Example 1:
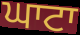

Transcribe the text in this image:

ਘਾਟਾ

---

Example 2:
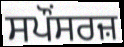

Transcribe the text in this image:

ਸਪੌਂਸਰਜ਼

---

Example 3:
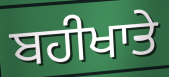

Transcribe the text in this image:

ਬਹੀਖਾਤੇ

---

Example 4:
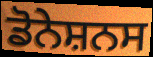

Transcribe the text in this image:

ਡੋਨੇਸ਼ਨਸ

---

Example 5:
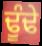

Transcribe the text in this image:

ਢੂੰਢੇ